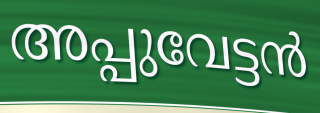
അപ്പുവേട്ടൻ